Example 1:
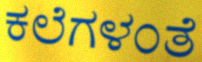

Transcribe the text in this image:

ಕಲೆಗಳಂತೆ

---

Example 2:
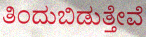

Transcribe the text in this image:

ತಿಂದುಬಿಡುತ್ತೇವೆ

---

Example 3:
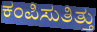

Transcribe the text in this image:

ಕಂಪಿಸುತಿತ್ತು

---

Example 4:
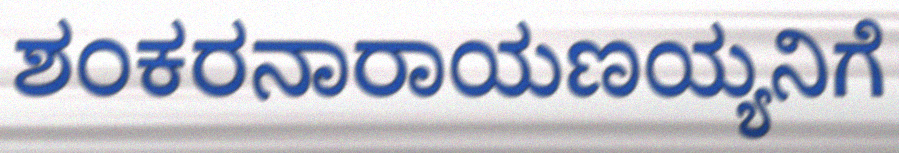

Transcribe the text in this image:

ಶಂಕರನಾರಾಯಣಯ್ಯನಿಗೆ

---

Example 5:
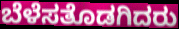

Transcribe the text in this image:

ಬೆಳೆಸತೊಡಗಿದರು